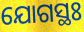
ଯୋଗସ୍ଥଃ